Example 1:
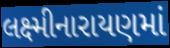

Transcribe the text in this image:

લક્ષ્મીનારાયણમાં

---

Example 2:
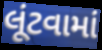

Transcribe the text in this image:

લૂંટવામાં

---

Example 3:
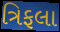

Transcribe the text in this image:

ત્રિફલા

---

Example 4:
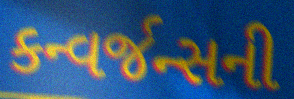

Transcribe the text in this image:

કન્વર્જન્સની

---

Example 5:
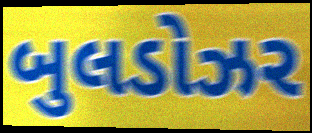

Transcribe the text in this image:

બુલડોઝર